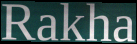
Rakha